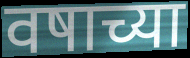
वषाच्या